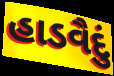
હાડવૈદું